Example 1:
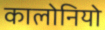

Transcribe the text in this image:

कालोनियो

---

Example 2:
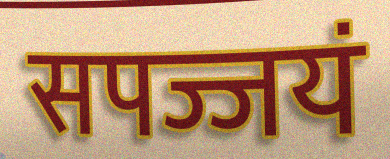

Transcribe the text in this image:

सपज्जयं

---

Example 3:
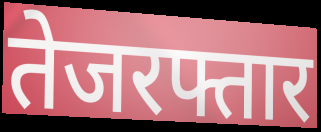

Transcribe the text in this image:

तेजरफ्तार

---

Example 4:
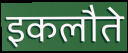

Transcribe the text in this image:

इकलौते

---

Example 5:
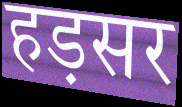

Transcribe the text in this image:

हड़सर